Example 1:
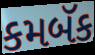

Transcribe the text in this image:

કમબૅક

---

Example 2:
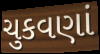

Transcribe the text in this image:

ચુકવણાં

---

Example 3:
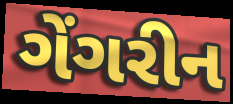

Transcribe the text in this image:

ગેંગરીન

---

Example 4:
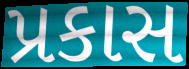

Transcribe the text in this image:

પ્રકાસ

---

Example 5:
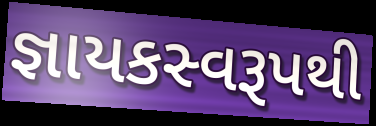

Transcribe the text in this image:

જ્ઞાયકસ્વરૂપથી